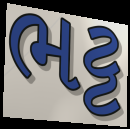
ભટ્ટ